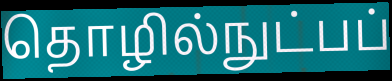
தொழில்நுட்பப்